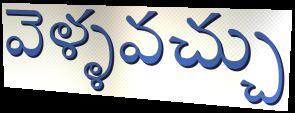
వెళ్ళవచ్చు